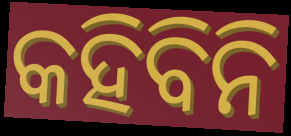
କହିବିନି